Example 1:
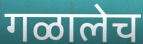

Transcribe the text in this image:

गळालेच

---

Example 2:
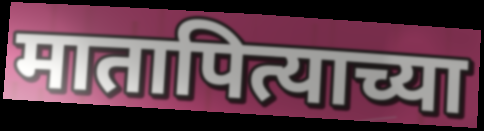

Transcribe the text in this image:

मातापित्याच्या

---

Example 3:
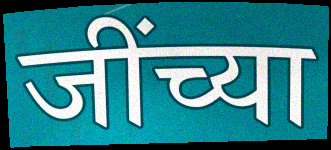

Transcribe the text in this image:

जींच्या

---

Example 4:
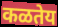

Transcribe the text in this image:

कळतेय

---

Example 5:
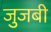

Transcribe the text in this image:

जुजबी